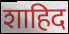
शाहिद